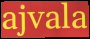
ajvala